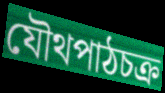
যৌথপাঠচক্র